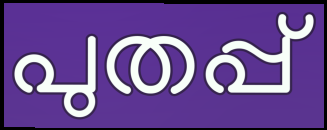
പുതപ്പ്